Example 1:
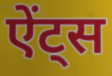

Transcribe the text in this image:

ऐंट्स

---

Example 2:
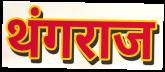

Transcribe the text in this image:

थंगराज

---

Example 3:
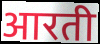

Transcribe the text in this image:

आरती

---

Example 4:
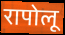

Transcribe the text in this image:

रापोलू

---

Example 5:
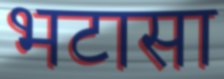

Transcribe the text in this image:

भटासा